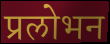
प्रलोभन